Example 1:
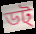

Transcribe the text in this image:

ডট্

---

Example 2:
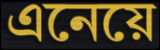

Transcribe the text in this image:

এনেয়ে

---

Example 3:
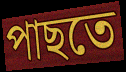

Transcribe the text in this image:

পাছতে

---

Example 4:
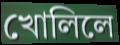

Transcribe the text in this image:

খোলিলে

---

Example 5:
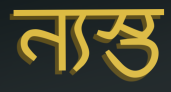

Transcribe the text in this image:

ন্যস্ত